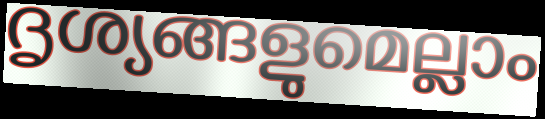
ദൃശ്യങ്ങളുമെല്ലാം